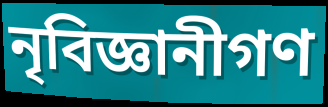
নৃবিজ্ঞানীগণ